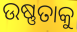
ଉଷ୍ଣତାକୁ